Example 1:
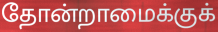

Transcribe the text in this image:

தோன்றாமைக்குக்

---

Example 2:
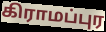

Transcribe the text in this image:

கிராமப்புர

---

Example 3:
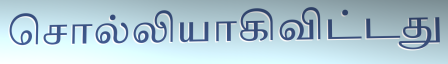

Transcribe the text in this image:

சொல்லியாகிவிட்டது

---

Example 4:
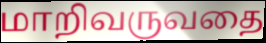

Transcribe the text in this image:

மாறிவருவதை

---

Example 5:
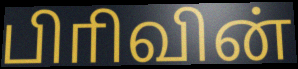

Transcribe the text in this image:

பிரிவின்